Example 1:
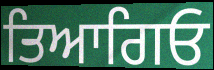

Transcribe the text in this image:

ਤਿਆਗਿਓ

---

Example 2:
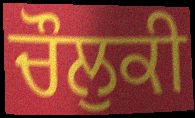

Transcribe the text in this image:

ਚੌਲੁਕੀ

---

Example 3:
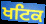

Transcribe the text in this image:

ਖਟਿਕ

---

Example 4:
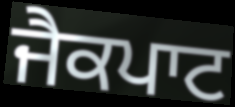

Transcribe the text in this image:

ਜੈਕਪਾਟ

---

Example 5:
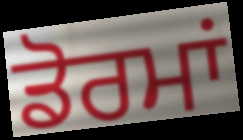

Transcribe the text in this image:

ਡੋਰਮਾਂ